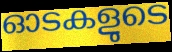
ഓടകളുടെ